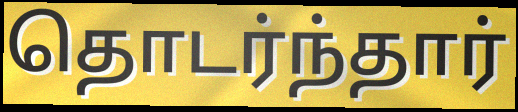
தொடர்ந்தார்